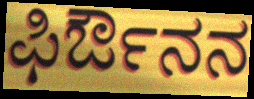
ಫಿರ್ಔನನ